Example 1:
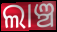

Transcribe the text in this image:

ଲାଞ୍ଚ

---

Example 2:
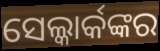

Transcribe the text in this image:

ସେଲ୍କାର୍କଙ୍କର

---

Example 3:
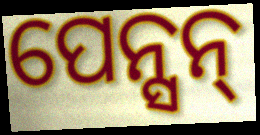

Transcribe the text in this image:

ପେନ୍ସନ୍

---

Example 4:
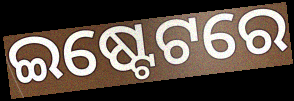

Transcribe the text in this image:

ଇଷ୍ଟେଟରେ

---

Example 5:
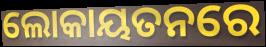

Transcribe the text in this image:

ଲୋକାୟତନରେ